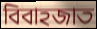
বিবাহজাত